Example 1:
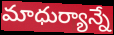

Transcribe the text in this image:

మాధుర్యాన్నే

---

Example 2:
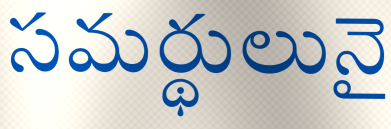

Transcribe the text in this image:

సమర్థులునై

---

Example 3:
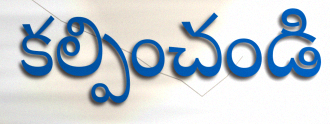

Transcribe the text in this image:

కల్పించండి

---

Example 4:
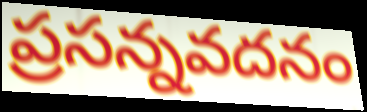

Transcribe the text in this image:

ప్రసన్నవదనం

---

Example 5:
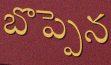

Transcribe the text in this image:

బొప్పెన